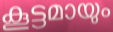
കൂട്ടമായും